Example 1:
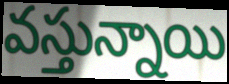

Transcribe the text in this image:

వస్తున్నాయి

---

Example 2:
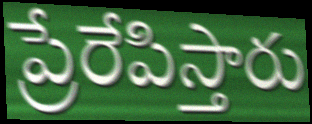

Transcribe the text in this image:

ప్రేరేపిస్తారు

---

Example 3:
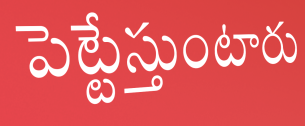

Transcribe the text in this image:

పెట్టేస్తుంటారు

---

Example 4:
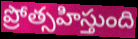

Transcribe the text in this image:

ప్రోత్సహిస్తుంది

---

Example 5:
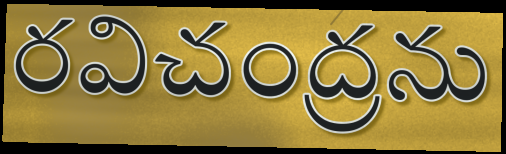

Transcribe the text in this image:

రవిచంద్రను